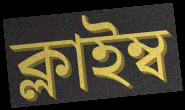
ক্লাইম্ব